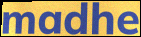
madhe